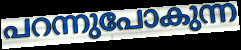
പറന്നുപോകുന്ന